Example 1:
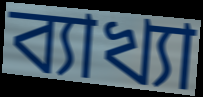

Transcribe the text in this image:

ব্যাখ্যা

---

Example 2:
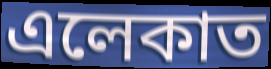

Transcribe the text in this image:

এলেকাত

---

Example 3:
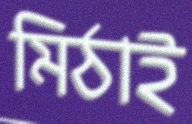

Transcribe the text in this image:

মিঠাই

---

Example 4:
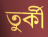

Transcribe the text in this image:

তুৰ্কী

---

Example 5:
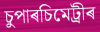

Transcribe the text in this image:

চুপাৰচিমেট্ৰীৰ